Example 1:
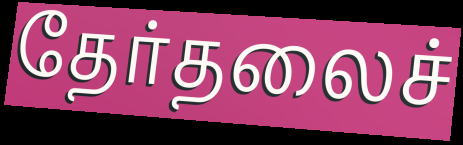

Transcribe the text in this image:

தேர்தலைச்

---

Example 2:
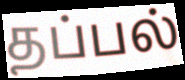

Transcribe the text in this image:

தப்பல்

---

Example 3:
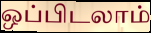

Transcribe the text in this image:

ஒப்பிடலாம்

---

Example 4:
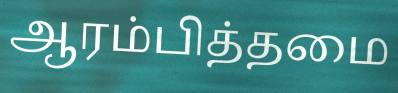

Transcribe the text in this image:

ஆரம்பித்தமை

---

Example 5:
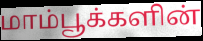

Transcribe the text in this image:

மாம்பூக்களின்